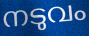
നടുവം